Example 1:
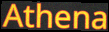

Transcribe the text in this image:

Athena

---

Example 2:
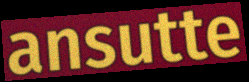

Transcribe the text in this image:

ansutte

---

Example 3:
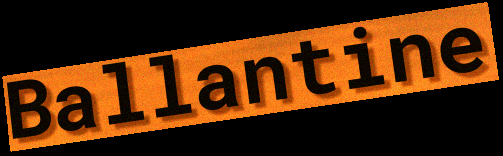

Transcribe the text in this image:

Ballantine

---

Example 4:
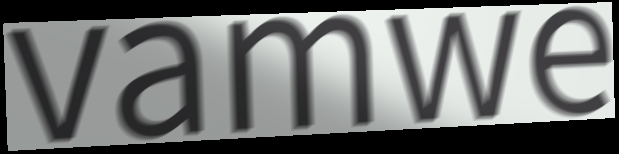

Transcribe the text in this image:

vamwe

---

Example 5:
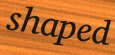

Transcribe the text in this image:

shaped